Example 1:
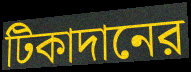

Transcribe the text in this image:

টিকাদানের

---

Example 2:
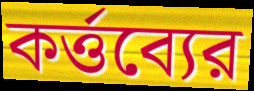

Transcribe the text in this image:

কর্ত্তব্যের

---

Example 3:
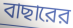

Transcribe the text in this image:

বাছারের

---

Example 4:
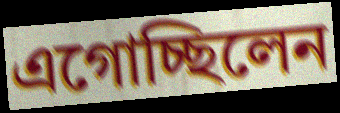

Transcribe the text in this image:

এগোচ্ছিলেন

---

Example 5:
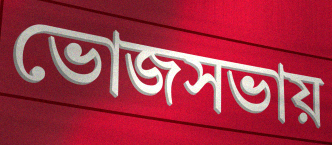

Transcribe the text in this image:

ভোজসভায়